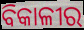
ବିକାଳୀର